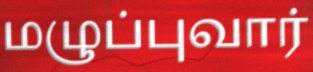
மழுப்புவார்